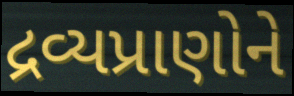
દ્રવ્યપ્રાણોને